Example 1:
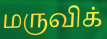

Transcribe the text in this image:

மருவிக்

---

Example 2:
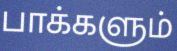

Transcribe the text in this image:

பாக்களும்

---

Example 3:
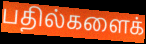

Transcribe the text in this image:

பதில்களைக்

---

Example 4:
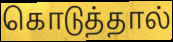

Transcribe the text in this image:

கொடுத்தால்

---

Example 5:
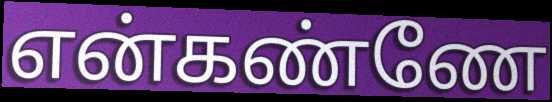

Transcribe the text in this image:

என்கண்ணே